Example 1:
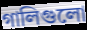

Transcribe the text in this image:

গালিগুলো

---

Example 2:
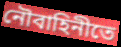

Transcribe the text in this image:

নৌবাহিনীতে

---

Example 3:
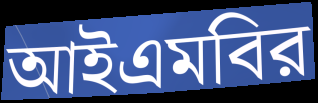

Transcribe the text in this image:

আইএমবির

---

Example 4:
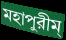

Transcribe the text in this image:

মহাপুরীম্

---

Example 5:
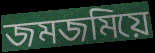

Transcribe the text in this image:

জমজমিয়ে